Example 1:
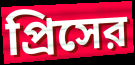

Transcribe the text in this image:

প্রিসের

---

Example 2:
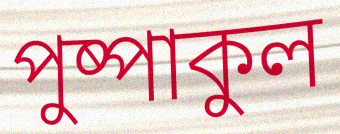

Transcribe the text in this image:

পুষ্পাকুল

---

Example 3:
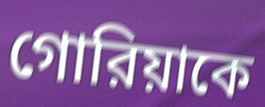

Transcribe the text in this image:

গোরিয়াকে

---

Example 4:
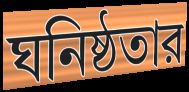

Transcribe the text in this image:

ঘনিষ্ঠতার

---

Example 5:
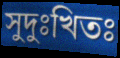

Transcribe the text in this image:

সুদুঃখিতঃ